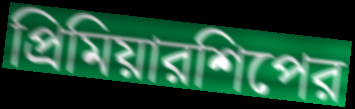
প্রিমিয়ারশিপের